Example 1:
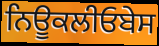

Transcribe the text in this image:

ਨਿਊਕਲੀਓਬੇਸ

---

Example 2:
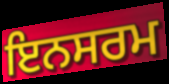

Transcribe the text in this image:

ਇਨਸਰਮ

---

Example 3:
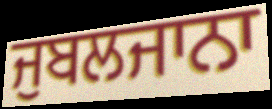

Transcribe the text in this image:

ਜੁਬਲਜਾਨਾ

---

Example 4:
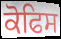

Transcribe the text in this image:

ਕੋਫਿਸ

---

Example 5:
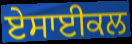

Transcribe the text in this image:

ਏਸਾਈਕਲ